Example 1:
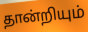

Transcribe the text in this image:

தான்றியும்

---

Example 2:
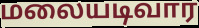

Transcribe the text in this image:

மலையடிவார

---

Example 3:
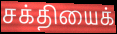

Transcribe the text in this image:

சக்தியைக்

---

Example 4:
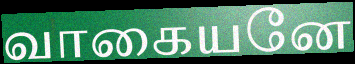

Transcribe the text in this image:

வாகையனே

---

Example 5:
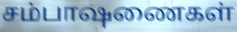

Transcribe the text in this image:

சம்பாஷணைகள்